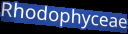
Rhodophyceae